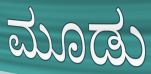
ಮೂಡು